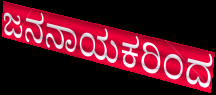
ಜನನಾಯಕರಿಂದ